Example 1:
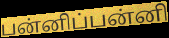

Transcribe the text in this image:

பன்னிப்பன்னி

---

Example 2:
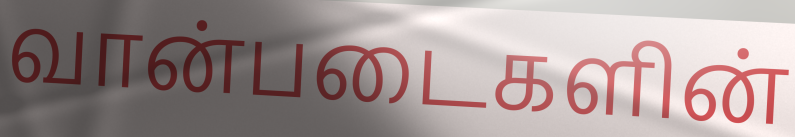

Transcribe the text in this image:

வான்படைகளின்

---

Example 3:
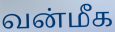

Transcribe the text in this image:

வன்மீக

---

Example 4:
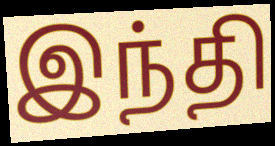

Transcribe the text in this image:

இந்தி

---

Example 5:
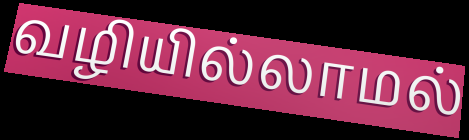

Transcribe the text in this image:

வழியில்லாமல்